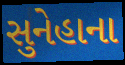
સુનેહાના